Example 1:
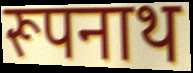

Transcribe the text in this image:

रूपनाथ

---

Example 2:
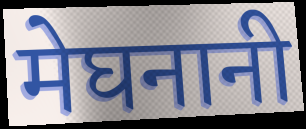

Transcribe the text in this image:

मेघनानी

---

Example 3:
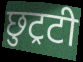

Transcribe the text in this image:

छुट्रटी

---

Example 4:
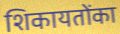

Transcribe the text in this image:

शिकायतोंका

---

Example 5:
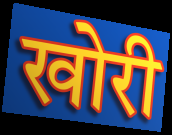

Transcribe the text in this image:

खोरी